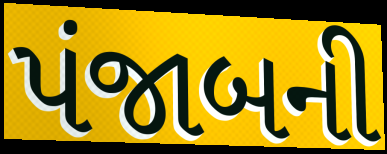
પંજાબની